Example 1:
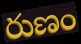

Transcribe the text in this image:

రుణం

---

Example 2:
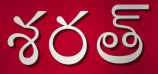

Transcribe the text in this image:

శరత్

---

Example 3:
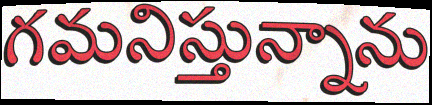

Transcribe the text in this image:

గమనిస్తున్నాను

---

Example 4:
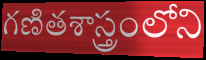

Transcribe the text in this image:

గణితశాస్త్రంలోని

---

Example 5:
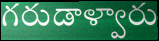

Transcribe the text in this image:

గరుడాళ్వారు